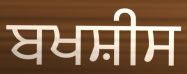
ਬਖਸ਼ੀਸ